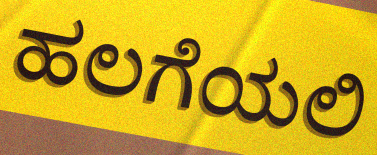
ಹಲಗೆಯಲಿ